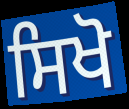
ਸਿਖੋ